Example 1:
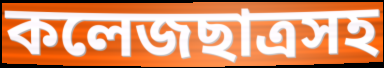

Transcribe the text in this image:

কলেজছাত্রসহ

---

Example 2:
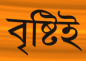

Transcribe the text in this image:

বৃষ্টিই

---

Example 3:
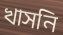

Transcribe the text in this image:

খাসনি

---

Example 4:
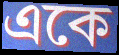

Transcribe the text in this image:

একে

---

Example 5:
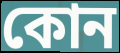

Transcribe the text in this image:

কোন